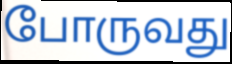
போருவது